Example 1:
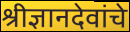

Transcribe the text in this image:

श्रीज्ञानदेवांचे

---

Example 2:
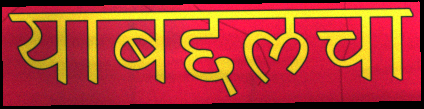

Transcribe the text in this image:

याबद्दलचा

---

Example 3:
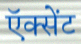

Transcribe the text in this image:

ऍक्सेंट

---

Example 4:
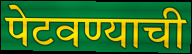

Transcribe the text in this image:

पेटवण्याची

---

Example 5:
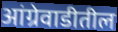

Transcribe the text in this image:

आंग्रेवाडीतील